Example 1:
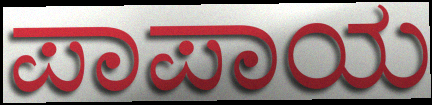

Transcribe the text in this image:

ಪಾಪಾಯ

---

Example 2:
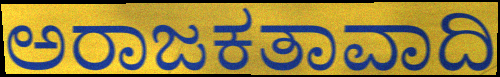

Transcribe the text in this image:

ಅರಾಜಕತಾವಾದಿ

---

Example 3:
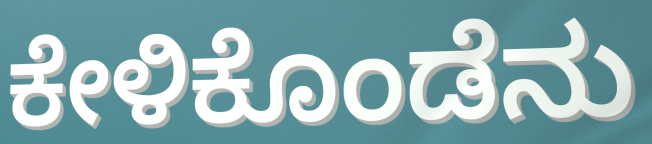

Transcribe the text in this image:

ಕೇಳಿಕೊಂಡೆನು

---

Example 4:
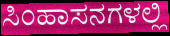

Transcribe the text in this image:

ಸಿಂಹಾಸನಗಳಲ್ಲಿ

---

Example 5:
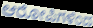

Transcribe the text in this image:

ಆರೋಪಿಗಳಿಂದ